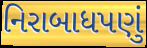
નિરાબાધપણું